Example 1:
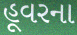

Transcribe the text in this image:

હૂવરના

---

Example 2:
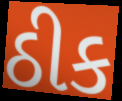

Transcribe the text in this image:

ઠીક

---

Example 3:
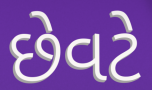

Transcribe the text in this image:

છેવટે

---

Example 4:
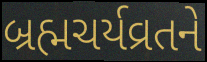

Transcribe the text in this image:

બ્રહ્મચર્યવ્રતને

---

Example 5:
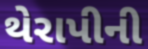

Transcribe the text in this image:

થેરાપીની